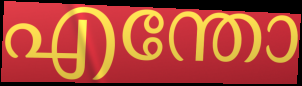
എന്തോ